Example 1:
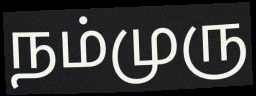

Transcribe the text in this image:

நம்முரு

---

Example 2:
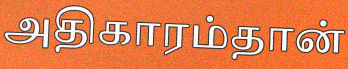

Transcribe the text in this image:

அதிகாரம்தான்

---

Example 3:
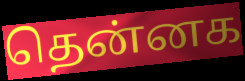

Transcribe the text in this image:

தென்னக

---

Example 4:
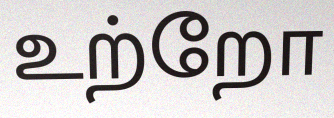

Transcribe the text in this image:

உற்றோ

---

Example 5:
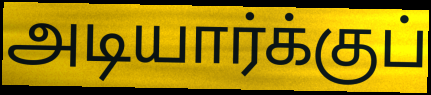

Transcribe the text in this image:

அடியார்க்குப்